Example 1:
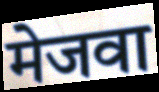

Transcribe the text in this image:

मेजवा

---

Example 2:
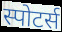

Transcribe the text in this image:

स्पोटर्स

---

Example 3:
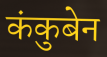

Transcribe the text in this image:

कंकुबेन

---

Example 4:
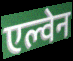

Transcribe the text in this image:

एल्वेन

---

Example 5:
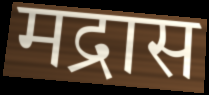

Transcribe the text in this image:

मद्रास